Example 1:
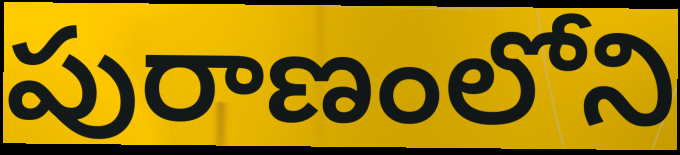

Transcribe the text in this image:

పురాణంలోని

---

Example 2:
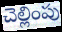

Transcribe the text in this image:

చెల్లింపు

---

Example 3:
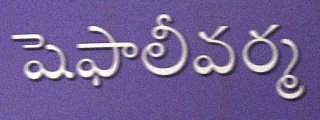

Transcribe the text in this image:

షెఫాలీవర్మ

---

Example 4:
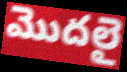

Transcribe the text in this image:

మొదలై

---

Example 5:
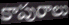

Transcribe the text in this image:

కాపురాలు